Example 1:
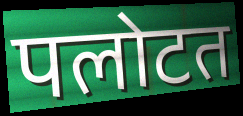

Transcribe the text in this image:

पलोटत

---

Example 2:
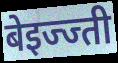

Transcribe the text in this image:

बेइज्ज्ती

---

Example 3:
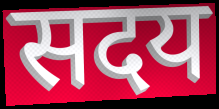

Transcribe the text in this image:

सदय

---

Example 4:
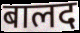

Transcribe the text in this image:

बालद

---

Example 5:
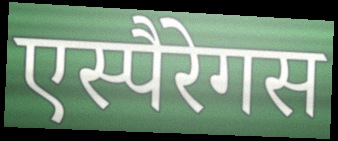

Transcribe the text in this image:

एस्पैरेगस